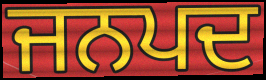
ਜਨਪਦ